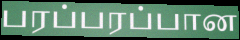
பரப்பரப்பான